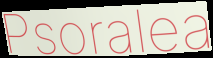
Psoralea